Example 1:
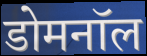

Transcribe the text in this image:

डोमनॉल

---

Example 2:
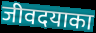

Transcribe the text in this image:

जीवदयाका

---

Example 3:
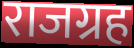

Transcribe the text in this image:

राजग्रह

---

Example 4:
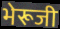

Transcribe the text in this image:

भेरूजी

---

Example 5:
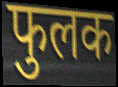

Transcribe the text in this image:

फुलक